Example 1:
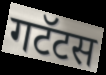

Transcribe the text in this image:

गटॅटस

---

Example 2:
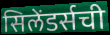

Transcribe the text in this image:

सिलेंडर्सची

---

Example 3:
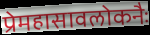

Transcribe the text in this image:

प्रेमहासावलोकनैः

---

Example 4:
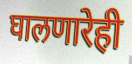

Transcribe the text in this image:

घालणारेही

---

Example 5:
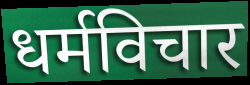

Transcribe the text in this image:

धर्मविचार